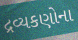
દ્રવ્યકણોના